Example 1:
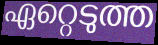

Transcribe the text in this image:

ഏറ്റെടുത്ത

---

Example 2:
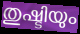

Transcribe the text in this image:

തുഷ്ടിയും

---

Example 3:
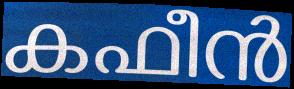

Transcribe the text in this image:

കഫീൻ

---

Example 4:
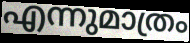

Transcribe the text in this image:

എന്നുമാത്രം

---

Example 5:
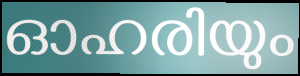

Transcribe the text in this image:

ഓഹരിയും